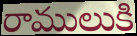
రాములుకి